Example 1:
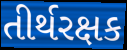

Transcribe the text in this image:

તીર્થરક્ષક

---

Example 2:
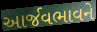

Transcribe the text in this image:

આર્જવભાવને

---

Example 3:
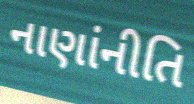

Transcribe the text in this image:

નાણાંનીતિ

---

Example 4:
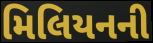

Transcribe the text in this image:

મિલિયનની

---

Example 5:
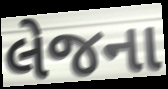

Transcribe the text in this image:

લેજના